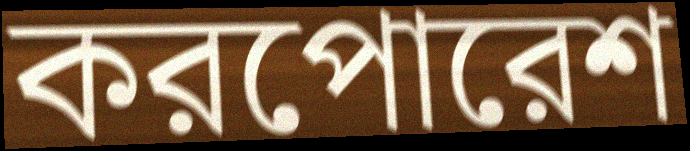
করপোরেশ